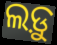
ଲଡ଼ୁ